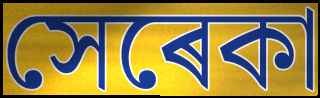
সেৰেকা